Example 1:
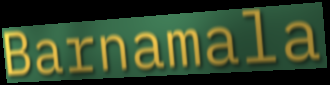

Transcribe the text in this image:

Barnamala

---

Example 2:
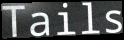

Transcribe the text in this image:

Tails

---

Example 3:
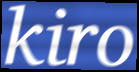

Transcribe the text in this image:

kiro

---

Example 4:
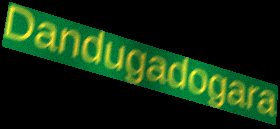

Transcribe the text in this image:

Dandugadogara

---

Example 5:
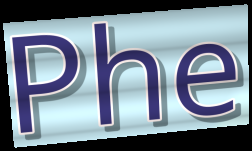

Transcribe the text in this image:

Phe